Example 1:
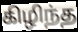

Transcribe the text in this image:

கிழிந்த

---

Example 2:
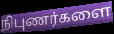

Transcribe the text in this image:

நிபுணர்களை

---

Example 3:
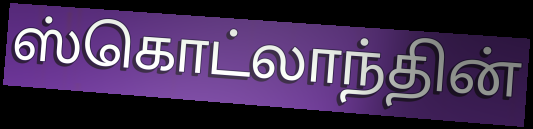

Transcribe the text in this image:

ஸ்கொட்லாந்தின்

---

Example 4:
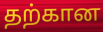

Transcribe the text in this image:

தற்கான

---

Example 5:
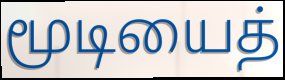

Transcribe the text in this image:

மூடியைத்